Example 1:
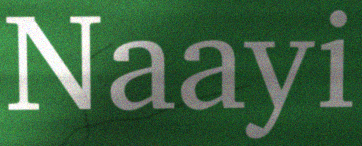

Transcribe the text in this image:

Naayi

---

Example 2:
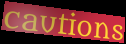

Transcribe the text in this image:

cautions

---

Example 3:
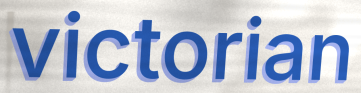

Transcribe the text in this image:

victorian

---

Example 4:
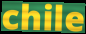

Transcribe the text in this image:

chile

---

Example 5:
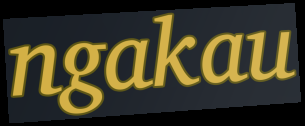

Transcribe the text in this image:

ngakau